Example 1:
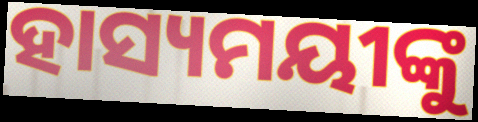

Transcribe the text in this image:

ହାସ୍ୟମୟୀଙ୍କୁ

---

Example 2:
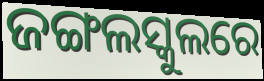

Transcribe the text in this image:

ଜଙ୍ଗଲସ୍କୁଲରେ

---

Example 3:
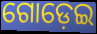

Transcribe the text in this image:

ଗୋଡ଼େଇ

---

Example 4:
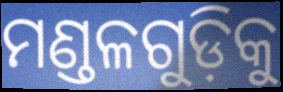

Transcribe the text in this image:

ମଣ୍ଡଳଗୁଡ଼ିକୁ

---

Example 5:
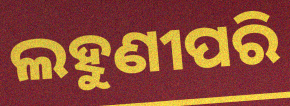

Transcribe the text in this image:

ଲହୁଣୀପରି